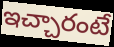
ఇచ్చారంటే